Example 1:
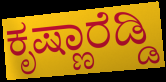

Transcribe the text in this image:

ಕೃಷ್ಣಾರೆಡ್ಡಿ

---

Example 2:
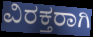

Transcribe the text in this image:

ವಿರಕ್ತರಾಗಿ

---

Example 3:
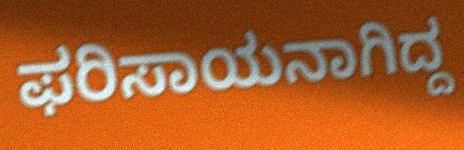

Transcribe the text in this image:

ಫರಿಸಾಯನಾಗಿದ್ದ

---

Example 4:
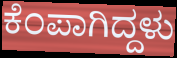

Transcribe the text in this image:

ಕೆಂಪಾಗಿದ್ದಳು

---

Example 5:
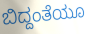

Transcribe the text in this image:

ಬಿದ್ದಂತೆಯೂ